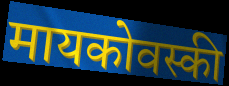
मायकोवस्की